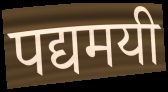
पद्यमयी